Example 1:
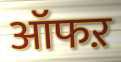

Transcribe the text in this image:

ऑफऱ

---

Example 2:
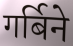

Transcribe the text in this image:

गर्बिने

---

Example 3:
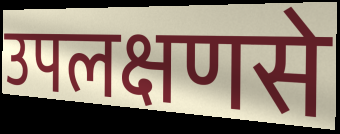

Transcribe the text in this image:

उपलक्षणसे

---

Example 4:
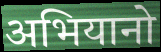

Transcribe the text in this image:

अभियानो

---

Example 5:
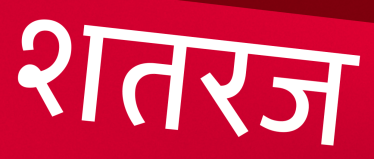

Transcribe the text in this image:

शतरज